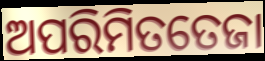
ଅପରିମିତତେଜା